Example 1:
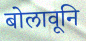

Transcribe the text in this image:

बोलावूनि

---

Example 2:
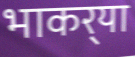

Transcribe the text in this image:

भाकर्‍या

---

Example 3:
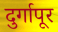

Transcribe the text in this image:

दुर्गापूर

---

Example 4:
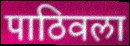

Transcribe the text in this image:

पाठिवला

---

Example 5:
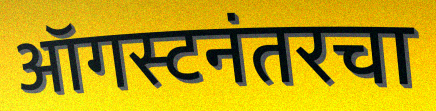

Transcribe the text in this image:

ऑगस्टनंतरचा